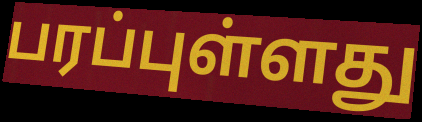
பரப்புள்ளது